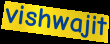
vishwajit